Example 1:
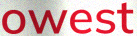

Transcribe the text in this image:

owest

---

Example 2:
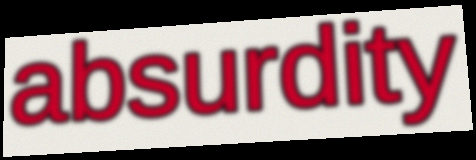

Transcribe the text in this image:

absurdity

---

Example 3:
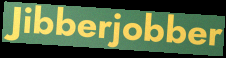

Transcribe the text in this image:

Jibberjobber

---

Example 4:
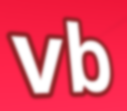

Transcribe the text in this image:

vb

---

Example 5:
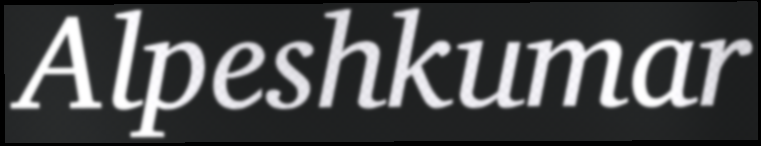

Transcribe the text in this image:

Alpeshkumar